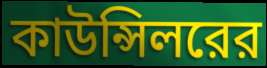
কাউন্সিলরের